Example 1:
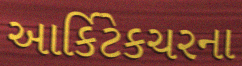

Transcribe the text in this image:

આર્કિટેકચરના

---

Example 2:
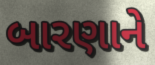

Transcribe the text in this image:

બારણાને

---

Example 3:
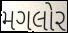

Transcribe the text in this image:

મગલોર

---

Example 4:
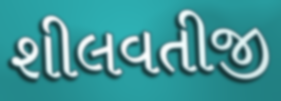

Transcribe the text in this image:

શીલવતીજી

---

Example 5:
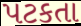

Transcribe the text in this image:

પટકતા